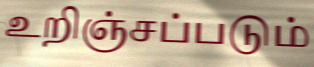
உறிஞ்சப்படும்